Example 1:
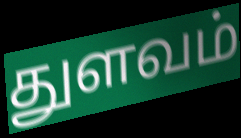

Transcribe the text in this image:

துளவம்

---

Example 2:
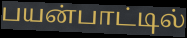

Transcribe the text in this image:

பயன்பாட்டில்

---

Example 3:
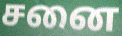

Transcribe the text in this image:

சனை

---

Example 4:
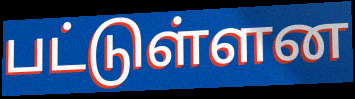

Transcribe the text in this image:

பட்டுள்ளன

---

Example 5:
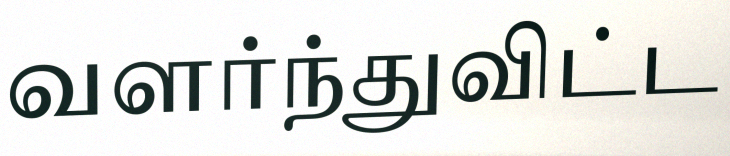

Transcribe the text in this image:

வளர்ந்துவிட்ட